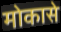
मोकासे